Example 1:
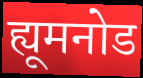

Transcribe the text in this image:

ह्यूमनोड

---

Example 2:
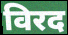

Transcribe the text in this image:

विरद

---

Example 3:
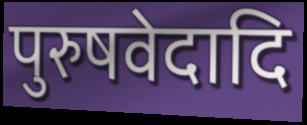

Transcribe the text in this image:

पुरुषवेदादि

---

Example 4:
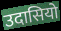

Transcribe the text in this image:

उदासियो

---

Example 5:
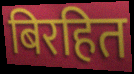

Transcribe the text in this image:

बिरहित